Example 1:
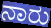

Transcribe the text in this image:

ನಾರು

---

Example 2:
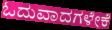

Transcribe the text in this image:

ಓದುವಾದಗಳೇಕೆ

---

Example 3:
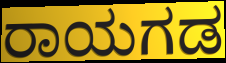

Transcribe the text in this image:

ರಾಯಗಡ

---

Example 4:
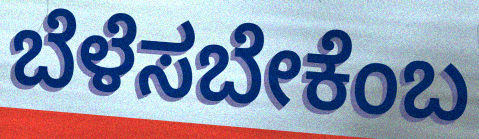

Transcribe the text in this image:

ಬೆಳೆಸಬೇಕೆಂಬ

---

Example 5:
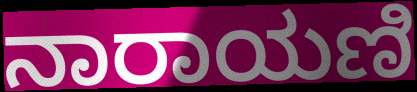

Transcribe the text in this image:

ನಾರಾಯಣಿ